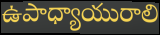
ఉపాధ్యాయురాలి